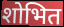
शोभित